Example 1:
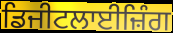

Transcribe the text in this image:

ਡਿਜੀਟਲਾਈਜ਼ਿੰਗ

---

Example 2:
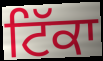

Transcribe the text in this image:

ਟਿੱਕਾ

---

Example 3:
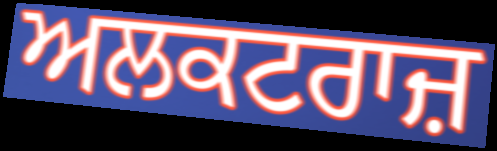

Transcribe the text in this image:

ਅਲਕਟਰਾਜ਼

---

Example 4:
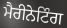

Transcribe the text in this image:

ਮੈਰੀਨੇਟਿੰਗ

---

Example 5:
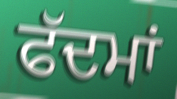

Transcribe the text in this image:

ਫੱਦਮਾਂ